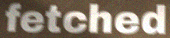
fetched